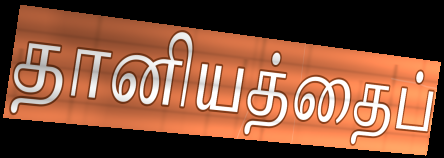
தானியத்தைப்